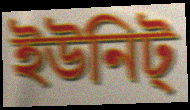
ইউনিট্